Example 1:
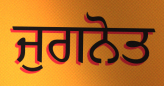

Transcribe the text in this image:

ਜੁਗਨੋਤ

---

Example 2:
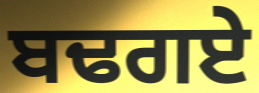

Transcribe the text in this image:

ਬਢਗਏ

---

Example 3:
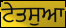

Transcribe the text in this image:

ਟੇਤਸੁਆ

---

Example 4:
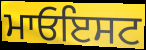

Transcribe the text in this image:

ਮਾਓਇਸਟ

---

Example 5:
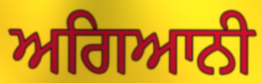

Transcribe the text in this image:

ਅਗਿਆਨੀ